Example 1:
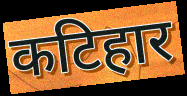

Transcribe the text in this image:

कटिहार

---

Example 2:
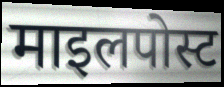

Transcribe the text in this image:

माइलपोस्ट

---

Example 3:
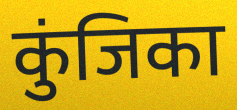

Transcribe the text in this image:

कुंजिका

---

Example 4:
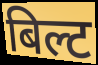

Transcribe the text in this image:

बिल्ट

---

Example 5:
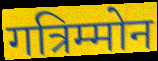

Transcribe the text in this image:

गत्रिम्मोन